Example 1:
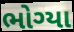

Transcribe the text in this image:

ભોગ્યા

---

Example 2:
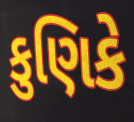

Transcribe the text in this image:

કુણિકે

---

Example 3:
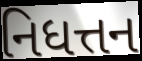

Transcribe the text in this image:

નિધત્તન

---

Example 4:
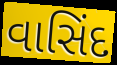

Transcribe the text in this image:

વાસિંદ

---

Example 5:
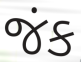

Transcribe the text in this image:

જંક